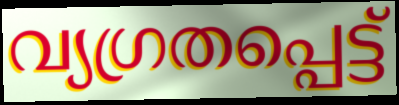
വ്യഗ്രതപ്പെട്ട്